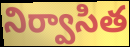
నిర్వాసిత